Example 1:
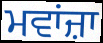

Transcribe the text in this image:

ਮਵਾਂਜ਼ਾ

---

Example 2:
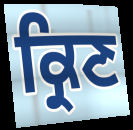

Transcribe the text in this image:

ਕ੍ਰਿਣ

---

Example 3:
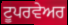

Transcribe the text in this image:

ਟੂਪਰਵੇਅਰ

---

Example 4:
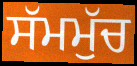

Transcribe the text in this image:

ਸੱਮਮੁੱਚ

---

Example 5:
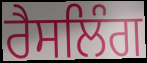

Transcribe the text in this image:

ਰੈਸਲਿੰਗ